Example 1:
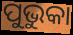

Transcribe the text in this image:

ପୁଭୁକା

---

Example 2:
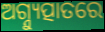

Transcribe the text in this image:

ଅଗ୍ନ୍ୟୁତ୍ପାତରେ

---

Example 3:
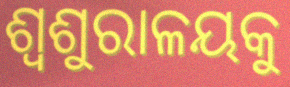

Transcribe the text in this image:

ଶ୍ୱଶୁରାଳୟକୁ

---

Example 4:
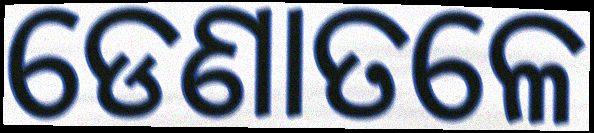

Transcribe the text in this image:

ଡେଣାତଳେ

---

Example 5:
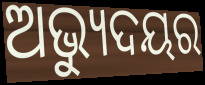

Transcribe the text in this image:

ଅଭ୍ୟୁଦୟର